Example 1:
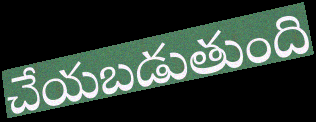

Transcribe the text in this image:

చేయబడుతుంది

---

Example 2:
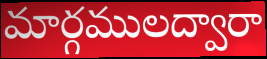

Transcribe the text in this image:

మార్గములద్వారా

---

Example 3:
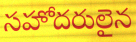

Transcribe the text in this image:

సహోదరులైన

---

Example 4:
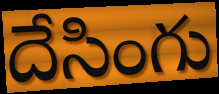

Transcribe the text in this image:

దేసింగు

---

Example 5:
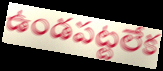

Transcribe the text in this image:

ఉండపట్టలేక